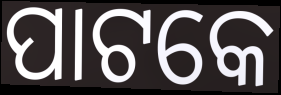
ପାଟକେ